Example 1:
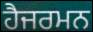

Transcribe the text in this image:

ਹੈਜਰਮਨ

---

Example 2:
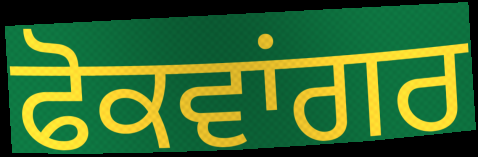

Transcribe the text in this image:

ਫੋਕਵਾਂਗਰ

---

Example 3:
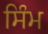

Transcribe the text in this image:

ਸਿੰਮ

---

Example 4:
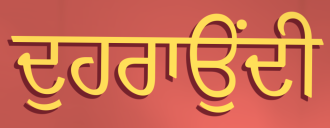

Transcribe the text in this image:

ਦੁਹਰਾਉਂਦੀ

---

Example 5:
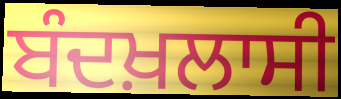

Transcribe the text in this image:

ਬੰਦਖ਼ਲਾਸੀ